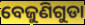
ବେଜୁଣିଗୁଡା